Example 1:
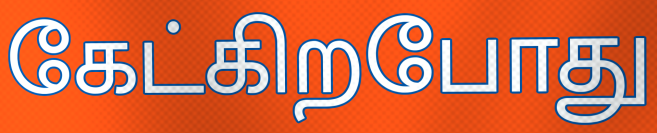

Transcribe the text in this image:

கேட்கிறபோது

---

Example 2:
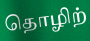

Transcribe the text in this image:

தொழிற்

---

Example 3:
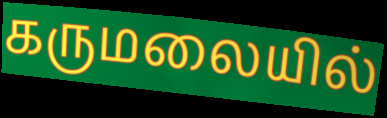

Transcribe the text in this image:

கருமலையில்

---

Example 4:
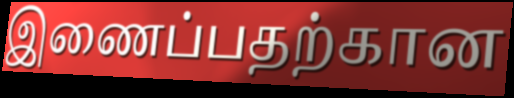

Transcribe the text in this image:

இணைப்பதற்கான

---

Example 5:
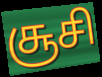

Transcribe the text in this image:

சூசி